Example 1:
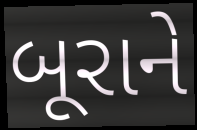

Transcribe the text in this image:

બૂરાને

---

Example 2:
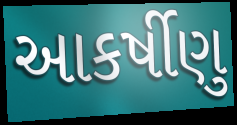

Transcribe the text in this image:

આકર્ષીણુ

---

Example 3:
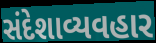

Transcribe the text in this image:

સંદેશાવ્યવહાર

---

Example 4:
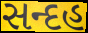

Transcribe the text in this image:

સન્દહ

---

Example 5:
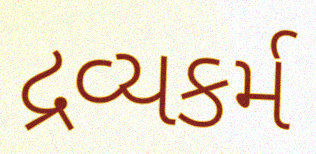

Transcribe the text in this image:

દ્રવ્યકર્મ